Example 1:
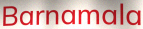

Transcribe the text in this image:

Barnamala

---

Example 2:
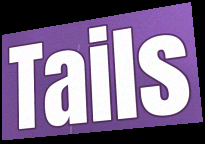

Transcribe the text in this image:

Tails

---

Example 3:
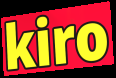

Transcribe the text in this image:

kiro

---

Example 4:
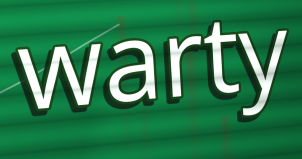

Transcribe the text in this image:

warty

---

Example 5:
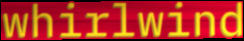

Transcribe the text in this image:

whirlwind